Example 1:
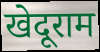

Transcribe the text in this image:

खेदूराम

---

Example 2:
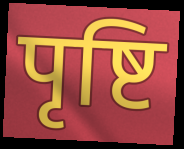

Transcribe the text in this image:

पृष्टि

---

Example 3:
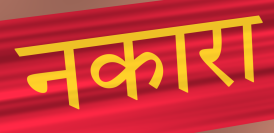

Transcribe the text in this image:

नकारा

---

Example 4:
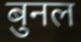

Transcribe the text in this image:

बुनल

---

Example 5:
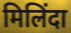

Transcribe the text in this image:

मिलिंदा